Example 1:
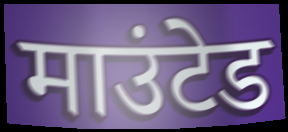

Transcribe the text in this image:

माउंटेड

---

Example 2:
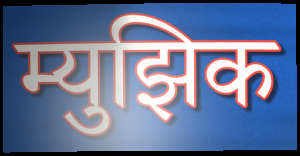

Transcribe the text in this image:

म्युझिक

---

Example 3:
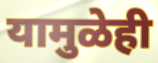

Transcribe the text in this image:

यामुळेही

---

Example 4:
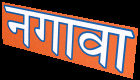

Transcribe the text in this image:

नगावा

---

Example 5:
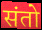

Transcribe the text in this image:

संतो